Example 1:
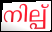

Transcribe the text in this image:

നില്പ്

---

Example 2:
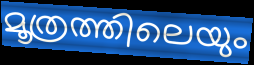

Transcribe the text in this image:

മൂത്രത്തിലെയും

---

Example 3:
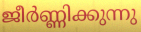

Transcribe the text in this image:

ജീർണ്ണിക്കുന്നു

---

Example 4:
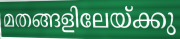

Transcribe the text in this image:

മതങ്ങളിലേയ്ക്കു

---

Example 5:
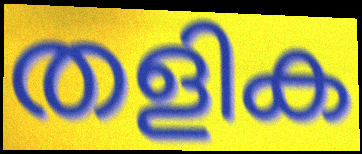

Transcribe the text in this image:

തളിക